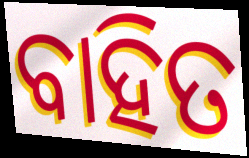
ବାହିତ